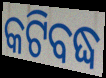
କଟିବଦ୍ଧ